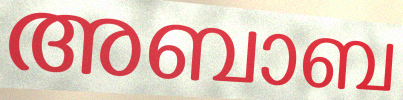
അബാബ